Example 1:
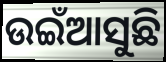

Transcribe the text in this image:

ଉଇଁଆସୁଛି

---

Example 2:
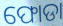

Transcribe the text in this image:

ଫୋଡା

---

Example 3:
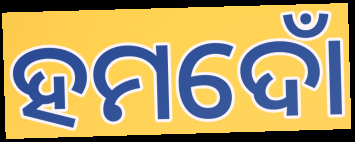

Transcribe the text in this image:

ହମଦୋଁ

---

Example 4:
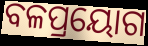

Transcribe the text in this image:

ବଳପ୍ରୟୋଗ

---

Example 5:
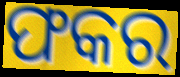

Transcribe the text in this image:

ଫକର